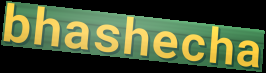
bhashecha